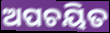
ଅପଚୟିତ